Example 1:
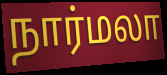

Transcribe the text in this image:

நார்மலா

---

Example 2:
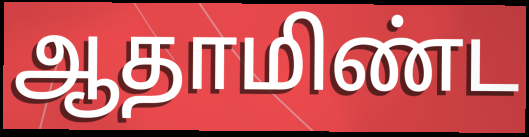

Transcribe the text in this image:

ஆதாமிண்ட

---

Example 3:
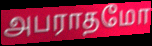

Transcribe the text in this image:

அபராதமோ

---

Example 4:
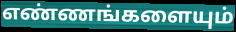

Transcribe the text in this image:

எண்ணங்களையும்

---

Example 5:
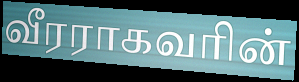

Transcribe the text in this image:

வீரராகவரின்